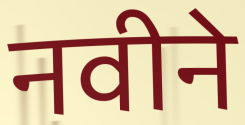
नवीने